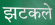
झटकले